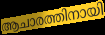
ആചാരത്തിനായി